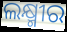
ଲକ୍ଷ୍ମୀର